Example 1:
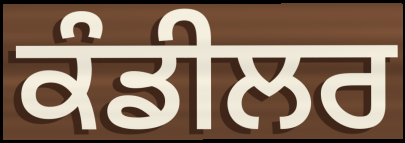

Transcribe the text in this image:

ਕੰਡੀਲਰ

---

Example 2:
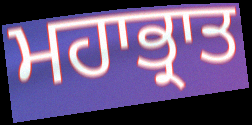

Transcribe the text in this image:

ਮਹਾਭ੍ਰਾਤ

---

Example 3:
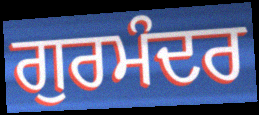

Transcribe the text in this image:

ਗੁਰਮੰਦਰ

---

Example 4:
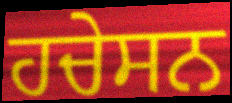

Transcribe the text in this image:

ਹਚੇਸਨ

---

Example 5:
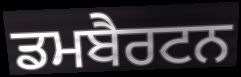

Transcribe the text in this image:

ਡਮਬੈਰਟਨ